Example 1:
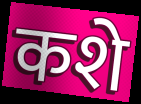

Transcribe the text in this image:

कशे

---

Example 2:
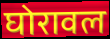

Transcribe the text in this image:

घोरावल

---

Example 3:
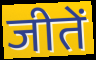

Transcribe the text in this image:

जीतें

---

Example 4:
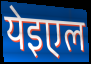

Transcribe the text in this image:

येइएल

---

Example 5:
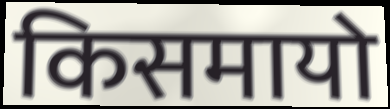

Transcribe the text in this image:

किसमायो